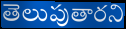
తెలుపుతారని